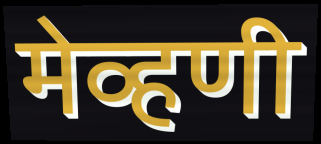
मेव्हणी